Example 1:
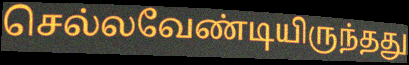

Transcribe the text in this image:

செல்லவேண்டியிருந்தது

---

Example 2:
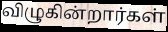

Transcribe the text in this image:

விழுகின்றார்கள்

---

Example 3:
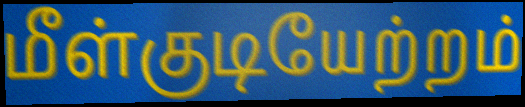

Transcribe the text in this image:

மீள்குடியேற்றம்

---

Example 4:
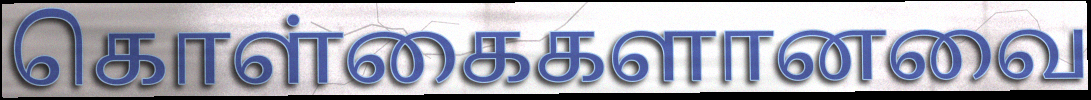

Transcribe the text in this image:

கொள்கைகளானவை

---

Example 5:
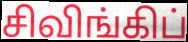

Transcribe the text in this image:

சிவிங்கிப்